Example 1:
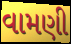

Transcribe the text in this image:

વામણી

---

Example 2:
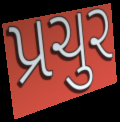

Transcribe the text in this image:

પ્રચુર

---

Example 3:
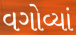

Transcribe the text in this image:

વગોવ્યાં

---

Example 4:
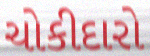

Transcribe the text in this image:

ચોકીદારો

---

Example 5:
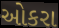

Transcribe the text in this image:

ઓકરા